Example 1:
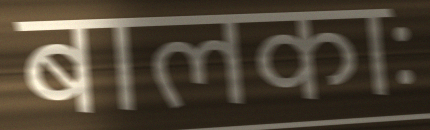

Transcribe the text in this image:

बालकाः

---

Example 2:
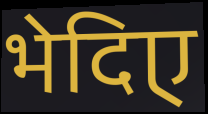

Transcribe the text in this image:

भेदिए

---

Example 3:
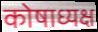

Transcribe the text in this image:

कोषाध्यक्ष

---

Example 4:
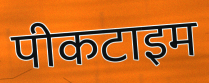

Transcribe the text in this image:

पीकटाइम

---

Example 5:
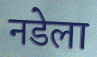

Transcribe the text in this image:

नडेला